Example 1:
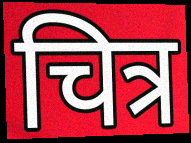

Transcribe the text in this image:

चित्र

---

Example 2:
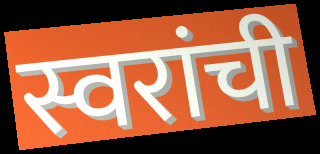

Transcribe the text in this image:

स्वरांची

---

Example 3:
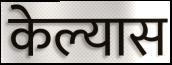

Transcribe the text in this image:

केल्यास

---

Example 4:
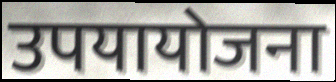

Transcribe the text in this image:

उपयायोजना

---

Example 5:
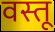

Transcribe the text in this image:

वस्तू